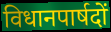
विधानपार्षदों